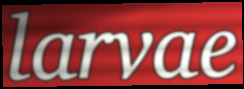
larvae